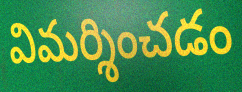
విమర్శించడం